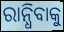
ରାନ୍ଧିବାକୁ